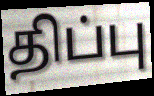
திப்பு